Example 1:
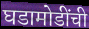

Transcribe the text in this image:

घडामोडींची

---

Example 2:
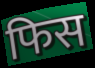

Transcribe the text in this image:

फिस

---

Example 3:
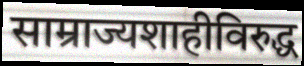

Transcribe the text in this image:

साम्राज्यशाहीविरुद्ध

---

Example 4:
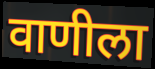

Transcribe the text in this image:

वाणीला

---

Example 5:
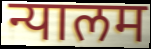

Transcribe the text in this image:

न्यालम